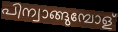
പിന്വാങ്ങുമ്പോള്